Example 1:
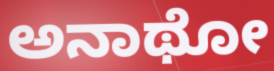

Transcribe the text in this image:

ಅನಾಥೋ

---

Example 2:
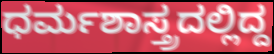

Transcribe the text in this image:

ಧರ್ಮಶಾಸ್ತ್ರದಲ್ಲಿದ್ದ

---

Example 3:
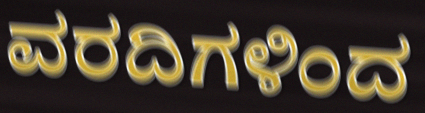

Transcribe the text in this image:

ವರದಿಗಳಿಂದ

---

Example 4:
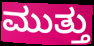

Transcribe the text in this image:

ಮುತ್ತು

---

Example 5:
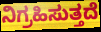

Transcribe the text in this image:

ನಿಗ್ರಹಿಸುತ್ತದೆ